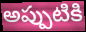
అప్పుటికి